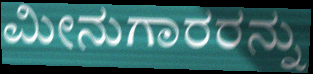
ಮೀನುಗಾರರನ್ನು